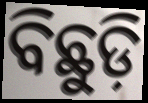
ବିଛୁଡ଼ି